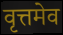
वृत्तमेव